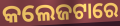
କଲେଜଟାରେ